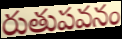
రుతుపవనం